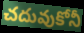
చదువుకోనీ